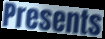
Presents